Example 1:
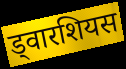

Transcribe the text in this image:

ड्वारशियस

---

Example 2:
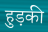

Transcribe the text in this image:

हुड़की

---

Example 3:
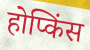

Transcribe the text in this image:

होप्किंस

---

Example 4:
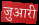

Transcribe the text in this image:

जुआरी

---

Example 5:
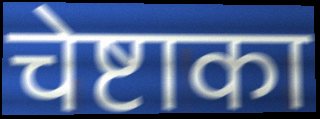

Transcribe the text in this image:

चेष्टाका